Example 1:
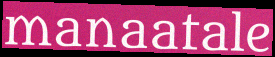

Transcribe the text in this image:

manaatale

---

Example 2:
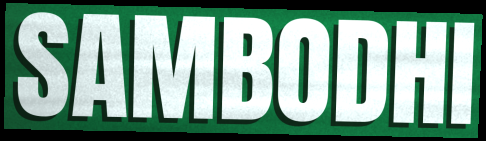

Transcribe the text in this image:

SAMBODHI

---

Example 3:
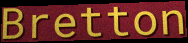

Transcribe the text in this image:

Bretton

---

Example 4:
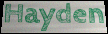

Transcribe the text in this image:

Hayden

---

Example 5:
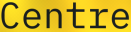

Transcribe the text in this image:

Centre